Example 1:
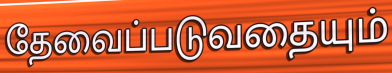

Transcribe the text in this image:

தேவைப்படுவதையும்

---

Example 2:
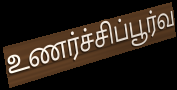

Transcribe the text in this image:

உணர்ச்சிப்பூர்வ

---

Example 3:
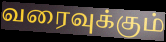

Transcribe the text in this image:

வரைவுக்கும்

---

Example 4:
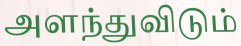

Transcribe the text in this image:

அளந்துவிடும்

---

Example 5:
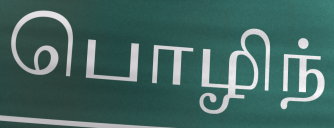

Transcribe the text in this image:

பொழிந்